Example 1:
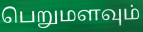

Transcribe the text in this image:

பெறுமளவும்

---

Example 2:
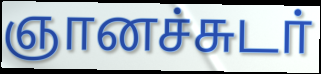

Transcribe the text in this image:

ஞானச்சுடர்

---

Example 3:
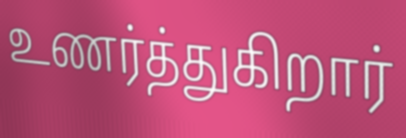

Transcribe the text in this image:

உணர்த்துகிறார்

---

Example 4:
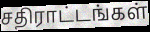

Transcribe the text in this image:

சதிராட்டங்கள்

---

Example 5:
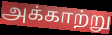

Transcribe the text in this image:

அக்காற்று